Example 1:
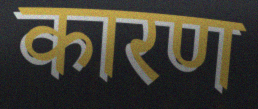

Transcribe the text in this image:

कारण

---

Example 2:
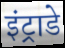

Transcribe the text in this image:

इंट्राडे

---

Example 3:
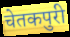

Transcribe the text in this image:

चेतकपुरी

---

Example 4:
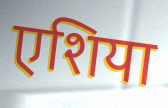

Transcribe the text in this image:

एशिया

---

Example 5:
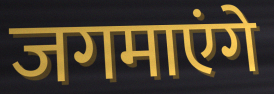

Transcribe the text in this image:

जगमाएंगे